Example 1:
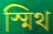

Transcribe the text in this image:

স্মিথ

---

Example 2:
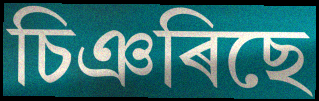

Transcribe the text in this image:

চিঞৰিছে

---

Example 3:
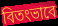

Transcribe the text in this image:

বিতংভাবে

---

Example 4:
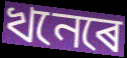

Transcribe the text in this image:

খনেৰে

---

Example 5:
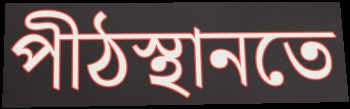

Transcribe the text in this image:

পীঠস্থানতে